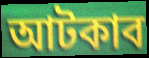
আটকাব